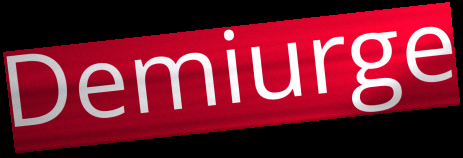
Demiurge